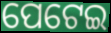
ପେଟେଇ